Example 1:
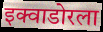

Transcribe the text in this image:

इक्वाडोरला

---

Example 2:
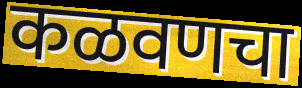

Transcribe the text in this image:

कळवणचा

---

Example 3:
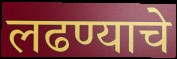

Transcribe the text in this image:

लढण्याचे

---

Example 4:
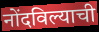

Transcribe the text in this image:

नोंदविल्याची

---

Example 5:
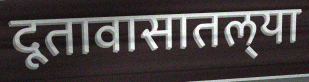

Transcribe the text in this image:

दूतावासातल्या